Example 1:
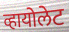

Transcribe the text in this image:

व्हायोलेट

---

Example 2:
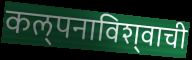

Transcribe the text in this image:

कल्पनाविश्वाची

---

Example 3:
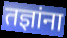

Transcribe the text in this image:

तज्ञांना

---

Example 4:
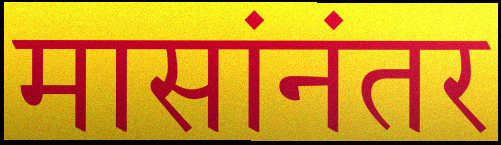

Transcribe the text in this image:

मासांनंतर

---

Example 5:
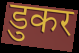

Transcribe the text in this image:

डुकर